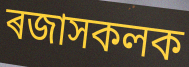
ৰজাসকলক